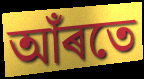
আঁৰতে